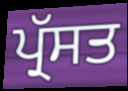
ਪ੍ਰੱਸਤ